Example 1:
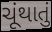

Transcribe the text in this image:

ચૂંથાતું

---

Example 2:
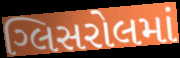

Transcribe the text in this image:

ગ્લિસરોલમાં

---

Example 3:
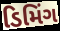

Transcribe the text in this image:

ડિમિંગ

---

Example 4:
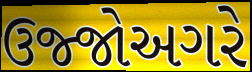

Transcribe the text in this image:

ઉજ્જોઅગરે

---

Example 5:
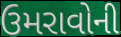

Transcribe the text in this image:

ઉમરાવોની